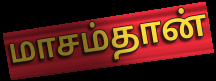
மாசம்தான்